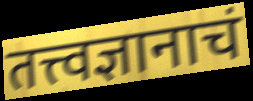
तत्त्वज्ञानाचं